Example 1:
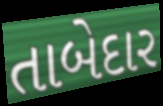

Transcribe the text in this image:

તાબેદાર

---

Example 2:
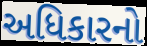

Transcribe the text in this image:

અધિકારનો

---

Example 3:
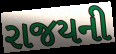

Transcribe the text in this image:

રાજયની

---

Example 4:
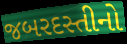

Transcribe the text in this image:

જબરદસ્તીનો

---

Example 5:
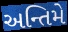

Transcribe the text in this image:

અન્તિમે